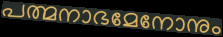
പത്മനാഭമേനോനും